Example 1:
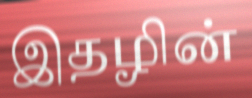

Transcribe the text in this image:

இதழின்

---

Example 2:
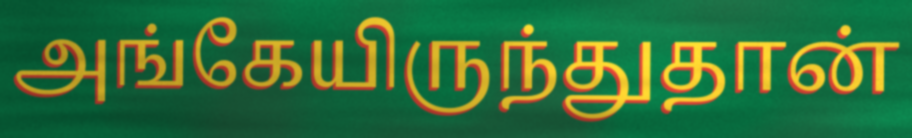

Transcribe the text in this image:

அங்கேயிருந்துதான்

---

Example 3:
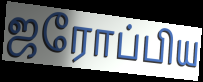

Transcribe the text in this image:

ஜரோப்பிய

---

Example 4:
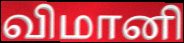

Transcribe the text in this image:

விமானி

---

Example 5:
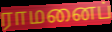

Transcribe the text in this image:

ராமனைப்